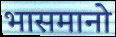
भासमानो